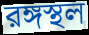
রঙ্গস্থল